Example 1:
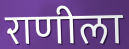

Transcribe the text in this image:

राणीला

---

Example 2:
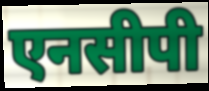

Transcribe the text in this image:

एनसीपी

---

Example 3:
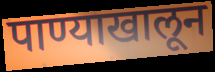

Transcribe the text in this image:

पाण्याखालून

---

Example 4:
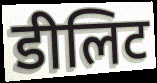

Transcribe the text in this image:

डीलिट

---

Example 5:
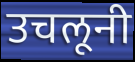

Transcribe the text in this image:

उचलूनी